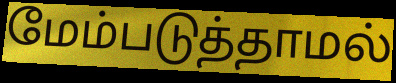
மேம்படுத்தாமல்